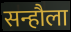
सन्हौला